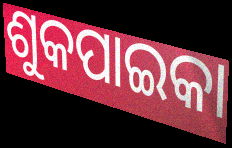
ଶୁକପାଇକା